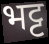
भट्ट